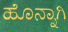
ಹೊನ್ನಾಗಿ